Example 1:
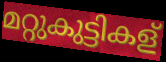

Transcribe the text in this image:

മറ്റുകുട്ടികള്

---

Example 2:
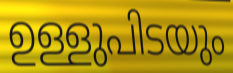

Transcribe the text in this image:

ഉള്ളുപിടയും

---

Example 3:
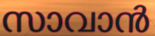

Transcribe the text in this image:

സാവാൻ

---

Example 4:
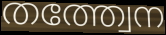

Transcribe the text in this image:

തത്ത്വേന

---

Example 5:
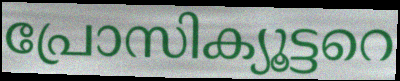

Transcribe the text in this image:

പ്രോസിക്യൂട്ടറെ